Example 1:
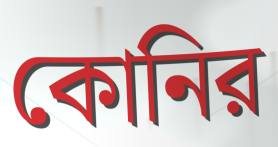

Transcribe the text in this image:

কোনির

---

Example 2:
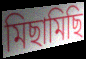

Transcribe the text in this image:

মিছামিছি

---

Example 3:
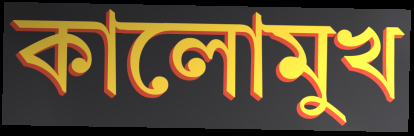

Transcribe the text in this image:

কালোমুখ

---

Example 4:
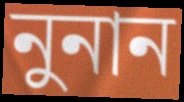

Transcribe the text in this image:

নুনান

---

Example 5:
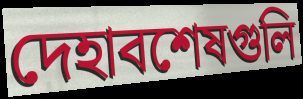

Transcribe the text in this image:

দেহাবশেষগুলি